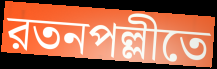
রতনপল্লীতে